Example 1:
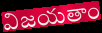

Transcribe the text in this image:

విజయతాం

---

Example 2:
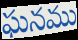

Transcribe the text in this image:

ఘనము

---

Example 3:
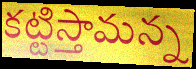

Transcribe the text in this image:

కట్టిస్తామన్న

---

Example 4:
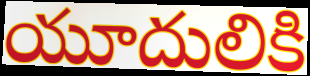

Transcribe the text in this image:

యూదులికి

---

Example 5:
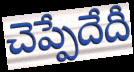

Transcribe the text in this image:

చెప్పేదేదీ